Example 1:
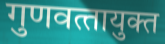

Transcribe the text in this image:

गुणवत्‍तायुक्‍त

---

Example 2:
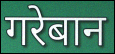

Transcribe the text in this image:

गरेबान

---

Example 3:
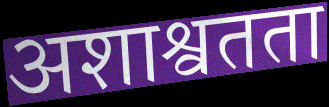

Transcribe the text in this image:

अशाश्वतता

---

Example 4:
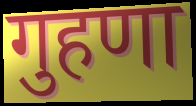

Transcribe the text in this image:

गुहणा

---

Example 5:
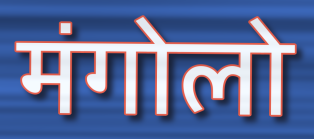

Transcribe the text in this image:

मंगोलो